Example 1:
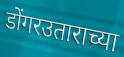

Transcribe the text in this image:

डोंगरउताराच्या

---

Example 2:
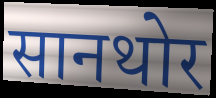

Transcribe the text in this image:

सानथोर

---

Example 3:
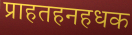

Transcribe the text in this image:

प्राहतहनहधक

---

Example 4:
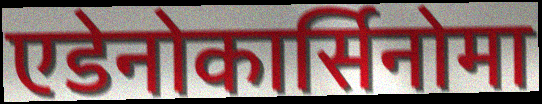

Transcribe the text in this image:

एडेनोकार्सिनोमा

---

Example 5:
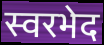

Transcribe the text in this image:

स्वरभेद